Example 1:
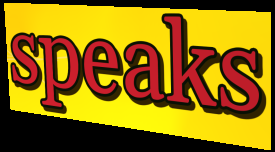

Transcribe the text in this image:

speaks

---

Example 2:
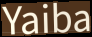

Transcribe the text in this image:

Yaiba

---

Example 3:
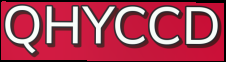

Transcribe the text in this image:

QHYCCD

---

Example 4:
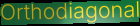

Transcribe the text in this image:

Orthodiagonal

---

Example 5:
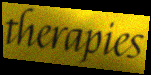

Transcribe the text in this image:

therapies